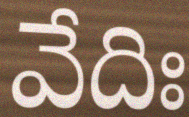
వేదిః